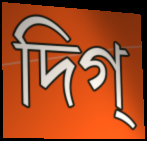
দিগ্